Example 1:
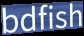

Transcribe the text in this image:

bdfish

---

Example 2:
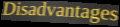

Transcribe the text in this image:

Disadvantages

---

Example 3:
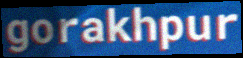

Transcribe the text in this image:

gorakhpur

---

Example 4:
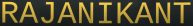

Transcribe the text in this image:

RAJANIKANT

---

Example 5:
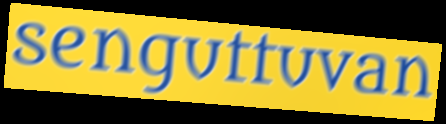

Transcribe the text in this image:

senguttuvan